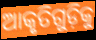
ଆକୃତିଗୁଡ଼ିକୁ